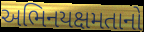
અભિનયક્ષમતાનો